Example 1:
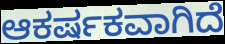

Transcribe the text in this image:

ಆಕರ್ಷಕವಾಗಿದೆ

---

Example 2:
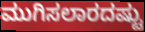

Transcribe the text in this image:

ಮುಗಿಸಲಾರದಷ್ಟು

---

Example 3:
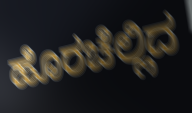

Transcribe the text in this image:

ಹೊರಚೆಲ್ಲಿದ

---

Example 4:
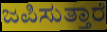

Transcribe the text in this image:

ಜಪಿಸುತ್ತಾರೆ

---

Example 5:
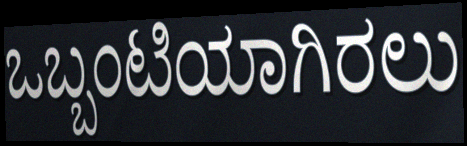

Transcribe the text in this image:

ಒಬ್ಬಂಟಿಯಾಗಿರಲು